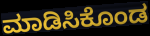
ಮಾಡಿಸಿಕೊಂಡ